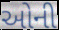
ઓની